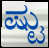
ಷ್ಟು